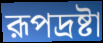
রূপদ্রষ্টা